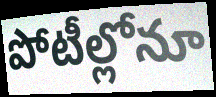
పోటీల్లోనూ